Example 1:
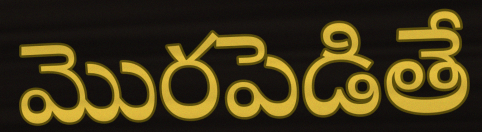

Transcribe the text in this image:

మొరపెడితే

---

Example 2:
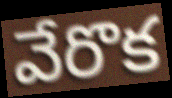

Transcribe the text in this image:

వేరొక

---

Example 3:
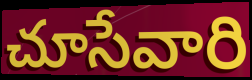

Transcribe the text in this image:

చూసేవారి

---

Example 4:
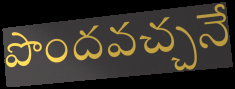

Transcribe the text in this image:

పొందవచ్చనే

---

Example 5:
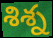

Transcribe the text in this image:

శిశ్న